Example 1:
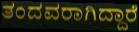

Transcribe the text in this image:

ತಂದವರಾಗಿದ್ದಾರೆ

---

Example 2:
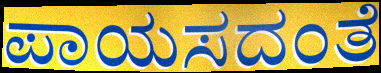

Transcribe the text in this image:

ಪಾಯಸದಂತೆ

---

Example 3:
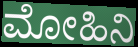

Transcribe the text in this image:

ಮೋಹಿನಿ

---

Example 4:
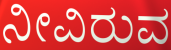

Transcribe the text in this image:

ನೀವಿರುವ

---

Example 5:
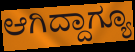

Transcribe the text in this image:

ಆಗಿದ್ದಾಗ್ಯೂ